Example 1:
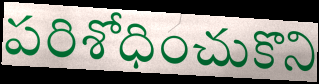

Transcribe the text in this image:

పరిశోధించుకొని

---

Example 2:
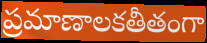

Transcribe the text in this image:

ప్రమాణాలకతీతంగా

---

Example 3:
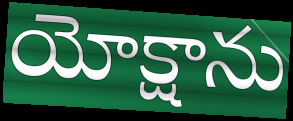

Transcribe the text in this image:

యోక్షాను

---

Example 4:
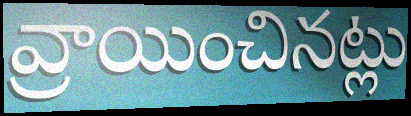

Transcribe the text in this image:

వ్రాయించినట్లు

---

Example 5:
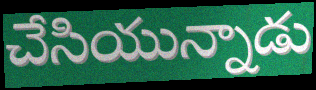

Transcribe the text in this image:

చేసియున్నాడు